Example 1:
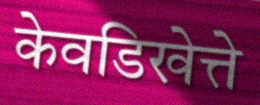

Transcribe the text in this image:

केवडिखेत्ते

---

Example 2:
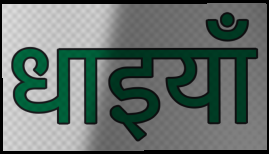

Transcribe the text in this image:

धाइयाँ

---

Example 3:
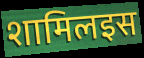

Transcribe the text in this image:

शामिलइस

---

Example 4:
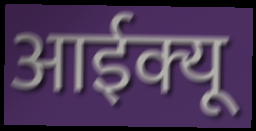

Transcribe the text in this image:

आईक्‍यू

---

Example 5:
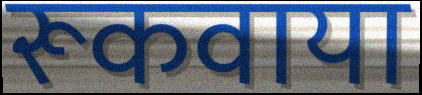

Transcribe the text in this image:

रूकवाया